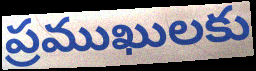
ప్రముఖులకు